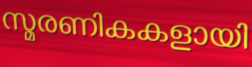
സ്മരണികകളായി